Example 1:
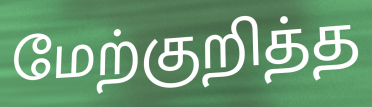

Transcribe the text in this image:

மேற்குறித்த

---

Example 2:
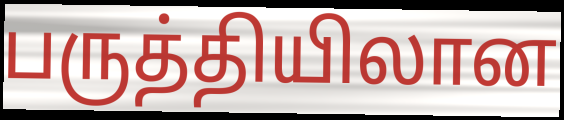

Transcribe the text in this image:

பருத்தியிலான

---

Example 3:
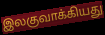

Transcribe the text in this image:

இலகுவாக்கியது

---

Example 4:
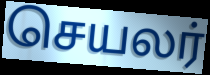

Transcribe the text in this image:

செயலர்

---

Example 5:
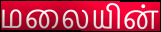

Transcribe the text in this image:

மலையின்